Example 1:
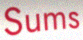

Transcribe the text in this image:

Sums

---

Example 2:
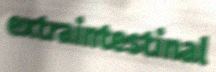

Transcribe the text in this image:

extraintestinal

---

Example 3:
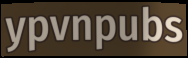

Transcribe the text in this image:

ypvnpubs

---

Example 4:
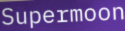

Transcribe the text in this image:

Supermoon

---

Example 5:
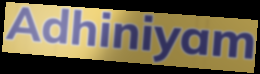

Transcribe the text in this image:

Adhiniyam